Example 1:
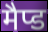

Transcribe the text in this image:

मैप्ड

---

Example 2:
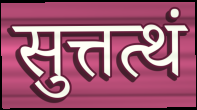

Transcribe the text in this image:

सुत्तत्थं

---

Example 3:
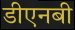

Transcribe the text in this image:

डीएनबी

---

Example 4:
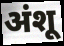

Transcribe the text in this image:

अंशू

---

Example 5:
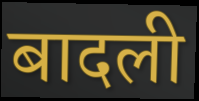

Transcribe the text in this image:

बादली